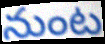
నుంట